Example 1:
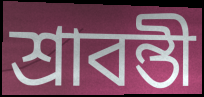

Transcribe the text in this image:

শ্রাবন্তী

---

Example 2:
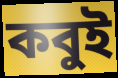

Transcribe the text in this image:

কবুই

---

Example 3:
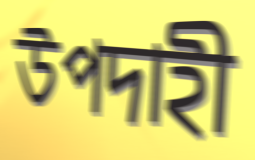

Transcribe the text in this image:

উপদাহী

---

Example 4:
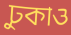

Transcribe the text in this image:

ঢুকাও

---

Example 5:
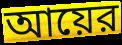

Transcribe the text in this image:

আয়ের